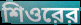
শিওরের